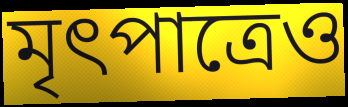
মৃৎপাত্রেও